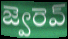
జ్వెరెవ్